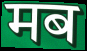
मब